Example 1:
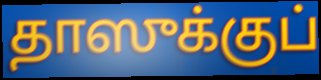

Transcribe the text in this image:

தாஸுக்குப்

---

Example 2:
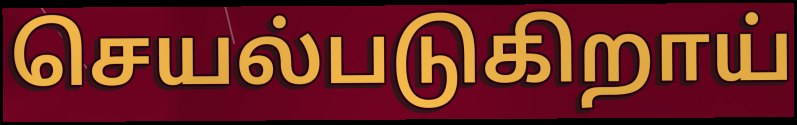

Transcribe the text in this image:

செயல்படுகிறாய்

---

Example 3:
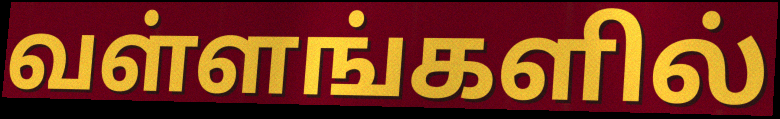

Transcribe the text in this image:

வள்ளங்களில்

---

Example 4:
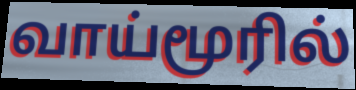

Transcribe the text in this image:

வாய்மூரில்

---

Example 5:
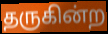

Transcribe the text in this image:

தருகின்ற